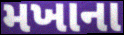
મખાના